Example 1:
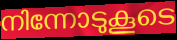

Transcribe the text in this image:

നിന്നോടുകൂടെ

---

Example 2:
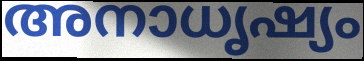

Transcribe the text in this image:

അനാധൃഷ്യം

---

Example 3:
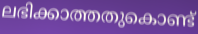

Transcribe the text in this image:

ലഭിക്കാത്തതുകൊണ്ട്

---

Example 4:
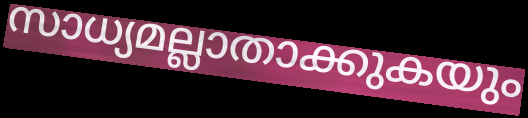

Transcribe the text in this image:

സാധ്യമല്ലാതാക്കുകയും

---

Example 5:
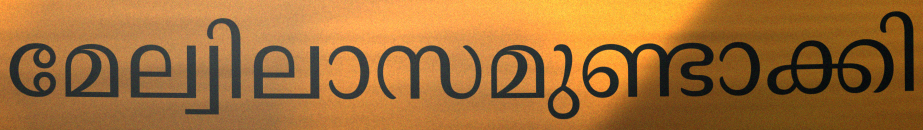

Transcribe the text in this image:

മേല്വിലാസമുണ്ടാക്കി